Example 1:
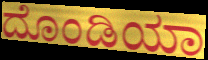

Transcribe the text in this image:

ದೊಂಡಿಯಾ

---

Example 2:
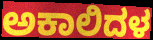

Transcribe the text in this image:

ಅಕಾಲಿದಳ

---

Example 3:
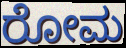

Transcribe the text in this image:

ರೋಮ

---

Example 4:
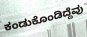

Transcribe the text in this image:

ಕಂಡುಕೊಂಡಿದ್ದೆವು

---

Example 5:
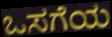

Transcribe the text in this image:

ಒಸಗೆಯ